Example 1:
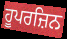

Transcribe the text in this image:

ਹੂਪਰਜ਼ਿਨ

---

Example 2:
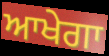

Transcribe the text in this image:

ਆਖੇਗਾ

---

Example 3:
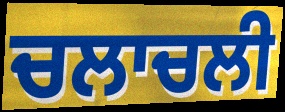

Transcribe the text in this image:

ਚਲਾਚਲੀ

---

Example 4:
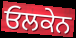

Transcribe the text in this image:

ਓਲਕੇਨ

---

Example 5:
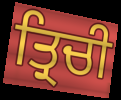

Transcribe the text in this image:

ਤ੍ਰਿਚੀ